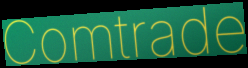
Comtrade